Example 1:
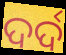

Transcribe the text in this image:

ଦର୍ଦ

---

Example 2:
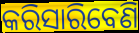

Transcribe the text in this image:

କରିସାରିବେଣି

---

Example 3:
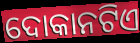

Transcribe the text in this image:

ଦୋକାନଟିଏ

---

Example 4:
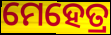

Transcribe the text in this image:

ମେହେତ୍ର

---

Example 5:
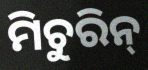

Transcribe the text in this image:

ମିଚୁରିନ୍